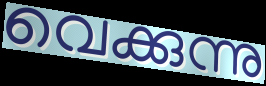
വെക്കുന്നു